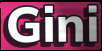
Gini